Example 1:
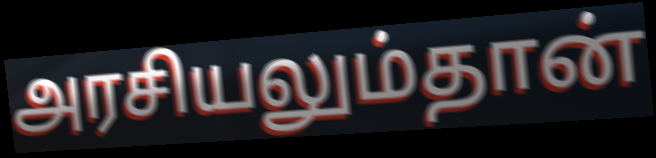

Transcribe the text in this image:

அரசியலும்தான்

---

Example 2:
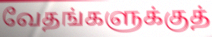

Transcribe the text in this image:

வேதங்களுக்குத்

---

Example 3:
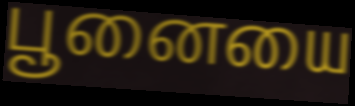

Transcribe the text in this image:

பூனையை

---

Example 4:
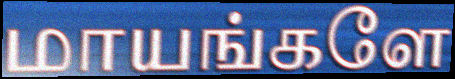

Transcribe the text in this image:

மாயங்களே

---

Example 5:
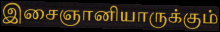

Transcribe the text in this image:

இசைஞானியாருக்கும்